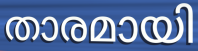
താരമായി